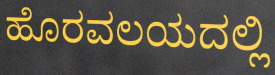
ಹೊರವಲಯದಲ್ಲಿ